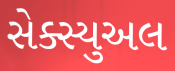
સેક્સ્યુઅલ